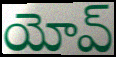
యోవ్